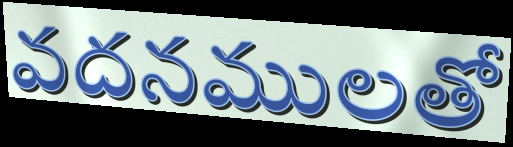
వదనములతో